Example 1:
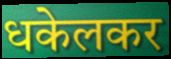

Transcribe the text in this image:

धकेलकर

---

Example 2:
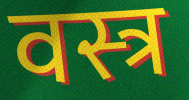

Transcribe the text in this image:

वस्‍त्र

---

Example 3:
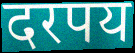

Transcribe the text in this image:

दरपय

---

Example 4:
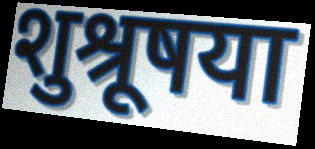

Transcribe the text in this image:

शुश्रूषया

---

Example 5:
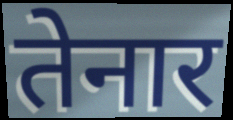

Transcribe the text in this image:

तेनार